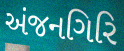
અંજનગિરિ